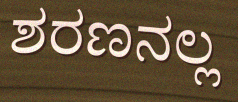
ಶರಣನಲ್ಲ